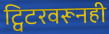
ट्विटरवरूनही